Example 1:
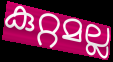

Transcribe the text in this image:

കുറ്റമല്ല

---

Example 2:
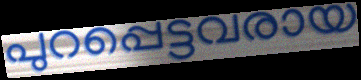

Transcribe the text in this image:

പുറപ്പെട്ടവരായ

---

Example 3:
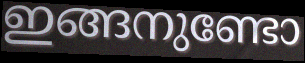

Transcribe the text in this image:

ഇങ്ങനുണ്ടോ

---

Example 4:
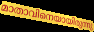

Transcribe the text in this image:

മാതാവിനെയായിരുന്നു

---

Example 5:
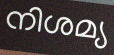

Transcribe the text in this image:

നിശമ്യ